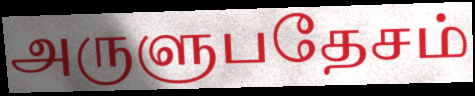
அருளுபதேசம்